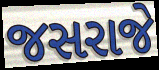
જસરાજે